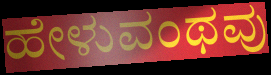
ಹೇಳುವಂಥವು